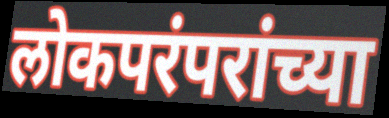
लोकपरंपरांच्या